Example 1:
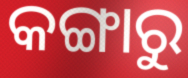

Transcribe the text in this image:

କଙ୍ଗାରୁ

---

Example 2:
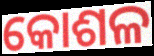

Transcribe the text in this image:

କୋଶଳ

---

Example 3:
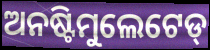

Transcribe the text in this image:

ଅନଷ୍ଟିମୁଲେଟେଡ୍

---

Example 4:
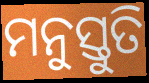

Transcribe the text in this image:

ମନୁସ୍ତୁତି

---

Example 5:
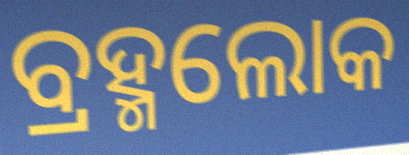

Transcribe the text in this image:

ବ୍ରହ୍ମଲୋକ